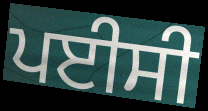
ਪਈਸੀ